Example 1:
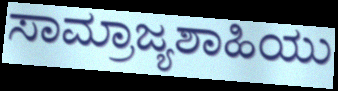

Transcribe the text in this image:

ಸಾಮ್ರಾಜ್ಯಶಾಹಿಯು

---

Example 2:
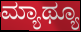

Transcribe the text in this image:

ಮ್ಯಾಥ್ಯೂ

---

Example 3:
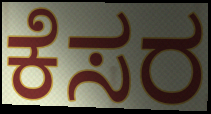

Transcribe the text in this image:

ಕೆಸರ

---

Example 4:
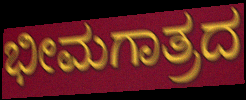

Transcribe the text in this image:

ಭೀಮಗಾತ್ರದ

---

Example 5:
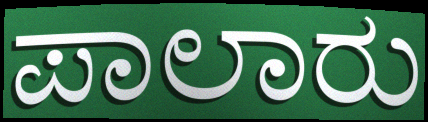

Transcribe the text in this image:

ಪಾಲಾರು